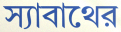
স্যাবাথের